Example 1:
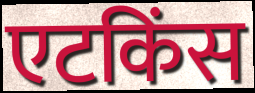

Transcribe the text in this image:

एटकिंस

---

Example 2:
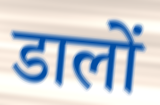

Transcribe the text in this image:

डालों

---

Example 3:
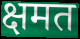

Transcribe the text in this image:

क्षमत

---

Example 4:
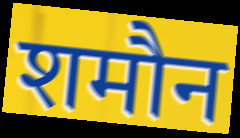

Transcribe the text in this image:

शमौन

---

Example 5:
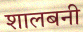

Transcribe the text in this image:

शालबनी